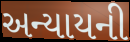
અન્યાયની